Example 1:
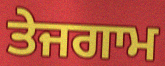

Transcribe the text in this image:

ਤੇਜਗਾਮ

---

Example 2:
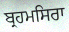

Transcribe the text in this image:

ਬ੍ਰਹਮਸਿਰਾ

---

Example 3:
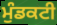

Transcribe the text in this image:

ਮੁੰਡਕਟੀ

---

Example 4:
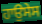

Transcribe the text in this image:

ਹਾਉਸੇਸ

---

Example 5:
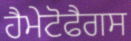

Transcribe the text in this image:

ਹੈਮੇਟੋਫੈਗਸ